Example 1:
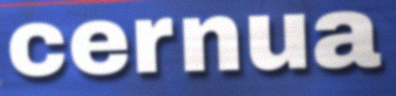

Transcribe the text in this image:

cernua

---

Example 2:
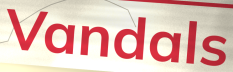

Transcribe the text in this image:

Vandals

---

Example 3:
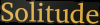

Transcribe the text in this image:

Solitude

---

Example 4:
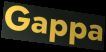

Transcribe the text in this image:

Gappa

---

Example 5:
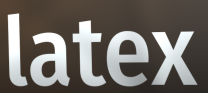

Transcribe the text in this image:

latex